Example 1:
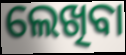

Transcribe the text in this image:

ଲେଖିବା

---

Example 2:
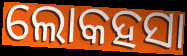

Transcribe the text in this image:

ଲୋକହସା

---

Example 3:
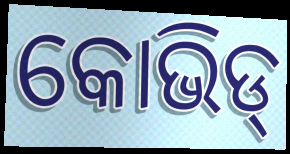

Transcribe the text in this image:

କୋଭିଡ୍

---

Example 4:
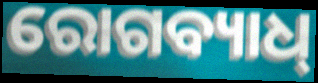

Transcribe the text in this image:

ରୋଗବ୍ୟାଧ୍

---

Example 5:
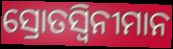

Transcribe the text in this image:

ସ୍ରୋତସ୍ୱିନୀମାନ